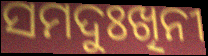
ସମଦୁଃଖିନୀ